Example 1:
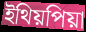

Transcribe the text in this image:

ইথিয়পিয়া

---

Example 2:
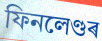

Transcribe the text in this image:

ফিনলেণ্ডৰ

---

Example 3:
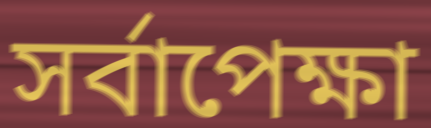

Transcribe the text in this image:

সৰ্বাপেক্ষা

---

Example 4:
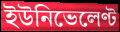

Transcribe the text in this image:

ইউনিভেলেণ্ট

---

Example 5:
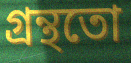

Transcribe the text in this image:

গ্ৰন্থতো